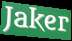
Jaker